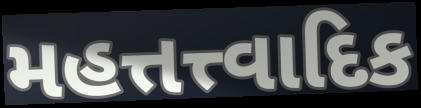
મહત્તત્ત્વાદિક